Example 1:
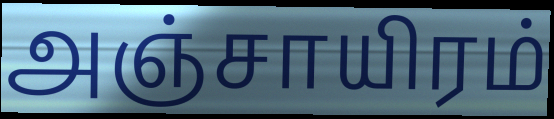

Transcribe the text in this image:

அஞ்சாயிரம்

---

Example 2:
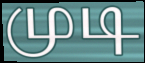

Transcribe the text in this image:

முடி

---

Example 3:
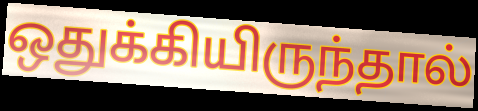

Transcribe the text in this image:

ஒதுக்கியிருந்தால்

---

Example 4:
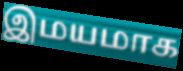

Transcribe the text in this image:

இமயமாக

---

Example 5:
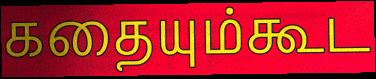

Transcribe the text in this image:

கதையும்கூட